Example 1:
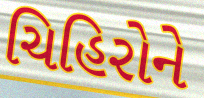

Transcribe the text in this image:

ચિહિરોને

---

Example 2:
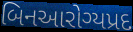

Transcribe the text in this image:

બિનઆરોગ્યપ્રદ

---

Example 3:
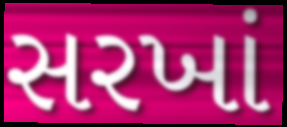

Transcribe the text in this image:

સરખાં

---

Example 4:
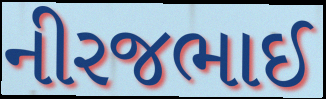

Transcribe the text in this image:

નીરજભાઈ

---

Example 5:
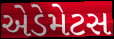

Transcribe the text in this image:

એડેમેટસ